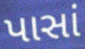
પાસાં